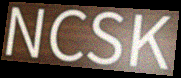
NCSK